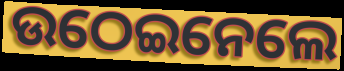
ଉଠେଇନେଲେ